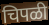
चिपळी